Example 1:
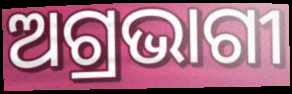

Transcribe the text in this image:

ଅଗ୍ରଭାଗୀ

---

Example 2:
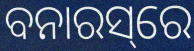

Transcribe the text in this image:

ବନାରସ୍‌ରେ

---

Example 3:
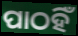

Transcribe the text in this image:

ପାଠହିଁ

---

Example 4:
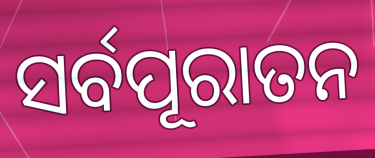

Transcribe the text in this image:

ସର୍ବପୂରାତନ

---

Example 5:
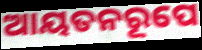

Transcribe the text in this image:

ଆୟତନରୂପେ